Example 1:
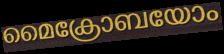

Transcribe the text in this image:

മൈക്രോബയോം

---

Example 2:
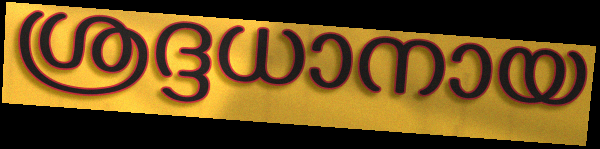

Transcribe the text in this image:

ശ്രദ്ദധാനായ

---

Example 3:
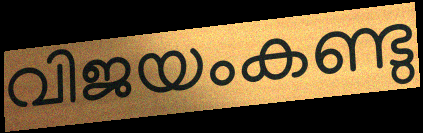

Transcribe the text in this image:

വിജയംകണ്ടു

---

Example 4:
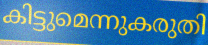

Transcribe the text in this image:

കിട്ടുമെന്നുകരുതി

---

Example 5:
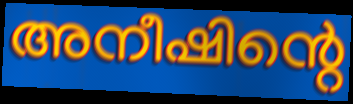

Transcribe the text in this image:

അനീഷിന്റെ